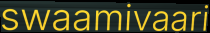
swaamivaari